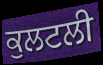
ਕੁਲਟਲੀ